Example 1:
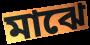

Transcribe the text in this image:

মাঝে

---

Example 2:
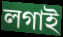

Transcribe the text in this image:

লগাই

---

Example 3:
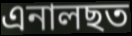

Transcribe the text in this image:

এনালছত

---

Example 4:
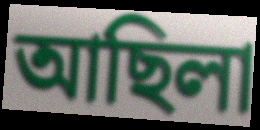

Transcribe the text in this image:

আছিলা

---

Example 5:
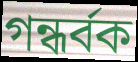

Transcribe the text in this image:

গন্ধৰ্বক